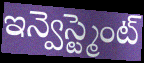
ఇన్వెస్ట్మెంట్